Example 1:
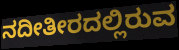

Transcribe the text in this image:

ನದೀತೀರದಲ್ಲಿರುವ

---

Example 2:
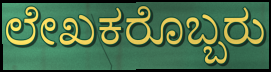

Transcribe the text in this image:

ಲೇಖಕರೊಬ್ಬರು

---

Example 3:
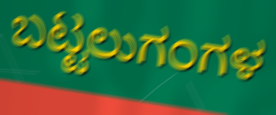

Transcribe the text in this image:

ಬಟ್ಟಲುಗಂಗಳ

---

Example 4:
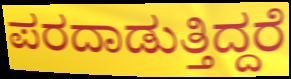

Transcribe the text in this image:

ಪರದಾಡುತ್ತಿದ್ದರೆ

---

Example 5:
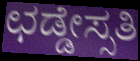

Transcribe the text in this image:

ಛಡ್ಡೇಸ್ಸತಿ